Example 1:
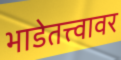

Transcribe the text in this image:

भाडेतत्त्वावर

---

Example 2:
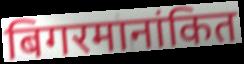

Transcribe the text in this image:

बिगरमानांकित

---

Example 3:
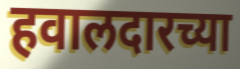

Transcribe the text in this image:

हवालदारच्या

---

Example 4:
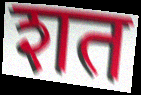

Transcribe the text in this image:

शत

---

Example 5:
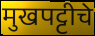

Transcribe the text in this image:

मुखपट्टीचे